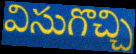
విసుగొచ్చి